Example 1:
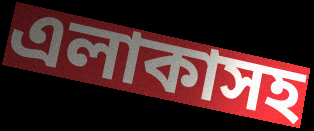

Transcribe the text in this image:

এলাকাসহ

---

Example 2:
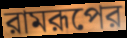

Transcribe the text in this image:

রামরূপের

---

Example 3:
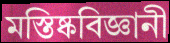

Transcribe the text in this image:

মস্তিষ্কবিজ্ঞানী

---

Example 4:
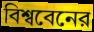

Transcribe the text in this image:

বিশ্ববেনের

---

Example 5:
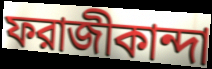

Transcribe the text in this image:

ফরাজীকান্দা